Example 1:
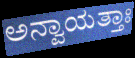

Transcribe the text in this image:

ಅನ್ವಾಯತ್ತಾಃ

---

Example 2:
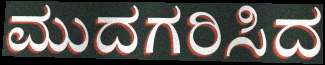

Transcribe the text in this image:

ಮುದಗರಿಸಿದ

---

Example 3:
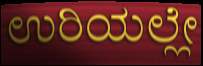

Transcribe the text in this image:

ಉರಿಯಲ್ಲೇ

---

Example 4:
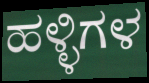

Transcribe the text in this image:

ಹಳ್ಳಿಗಳ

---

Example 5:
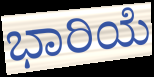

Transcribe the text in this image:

ಭಾರಿಯೆ